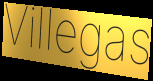
Villegas